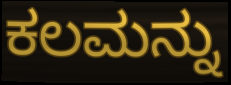
ಕಲಮನ್ನು